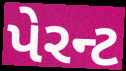
પેરન્ટ